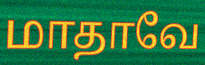
மாதாவே